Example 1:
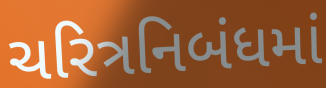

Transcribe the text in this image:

ચરિત્રનિબંધમાં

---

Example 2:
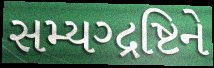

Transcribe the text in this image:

સમ્યગ્દ્રષ્ટિને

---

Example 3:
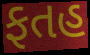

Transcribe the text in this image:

ફતહ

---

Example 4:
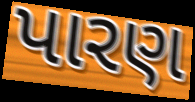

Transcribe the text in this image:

પારણ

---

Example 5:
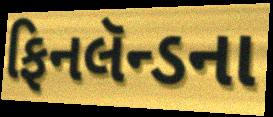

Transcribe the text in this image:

ફિનલૅન્ડના